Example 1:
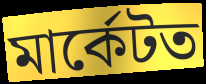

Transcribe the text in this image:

মাৰ্কেটত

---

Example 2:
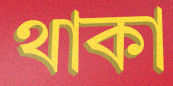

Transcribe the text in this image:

থাকা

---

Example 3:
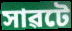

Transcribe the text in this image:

সাৱটে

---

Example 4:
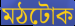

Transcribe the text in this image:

মঠটোক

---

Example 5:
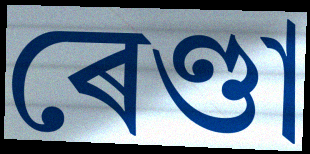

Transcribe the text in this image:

ৰেণ্ডা